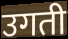
उगती